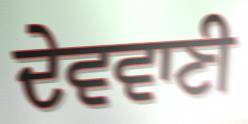
ਦੇਵਵਾਣੀ